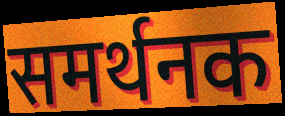
समर्थनक